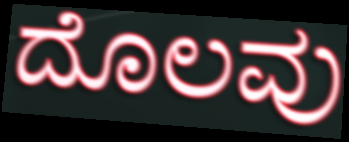
ದೊಲವು